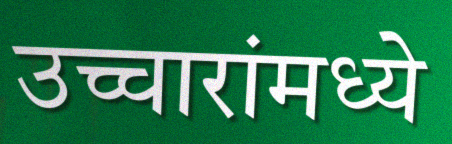
उच्चारांमध्ये